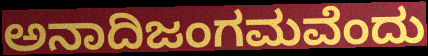
ಅನಾದಿಜಂಗಮವೆಂದು